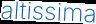
altissima